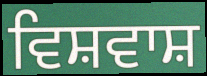
ਵਿਸ਼ਵਾਸ਼